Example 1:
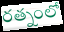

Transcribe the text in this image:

రత్నంలో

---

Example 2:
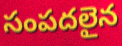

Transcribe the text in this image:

సంపదలైన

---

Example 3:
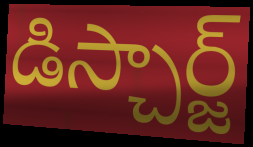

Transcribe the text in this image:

డిస్చార్జ్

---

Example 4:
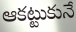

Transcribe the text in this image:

ఆకట్టుకునే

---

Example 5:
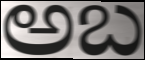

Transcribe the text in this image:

అబ